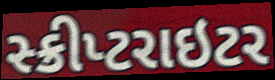
સ્ક્રીપ્ટરાઇટર